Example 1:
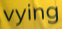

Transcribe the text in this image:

vying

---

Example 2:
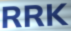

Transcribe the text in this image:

RRK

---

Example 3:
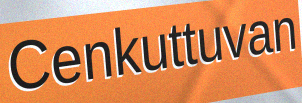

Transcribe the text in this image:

Cenkuttuvan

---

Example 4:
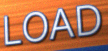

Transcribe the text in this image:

LOAD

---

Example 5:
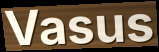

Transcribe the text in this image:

Vasus